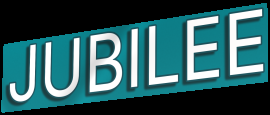
JUBILEE